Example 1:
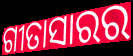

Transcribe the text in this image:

ଗୀତାସାରର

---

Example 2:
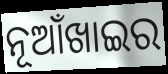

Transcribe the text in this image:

ନୂଆଁଖାଇର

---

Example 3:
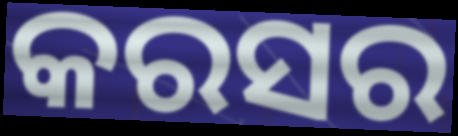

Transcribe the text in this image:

କରସର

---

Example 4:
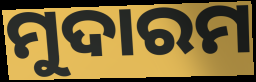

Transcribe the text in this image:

ମୁଦାରମ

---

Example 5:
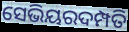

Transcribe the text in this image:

ସେଭିୟରଦମ୍ପତି